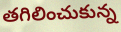
తగిలించుకున్న